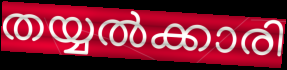
തയ്യൽക്കാരി